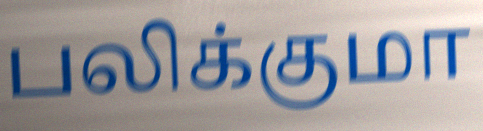
பலிக்குமா